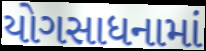
યોગસાધનામાં